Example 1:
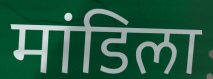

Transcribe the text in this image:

मांडिला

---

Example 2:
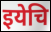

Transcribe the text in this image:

इयेचि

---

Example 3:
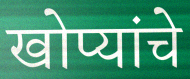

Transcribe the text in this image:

खोप्यांचे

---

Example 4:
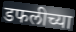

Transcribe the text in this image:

डफलीच्या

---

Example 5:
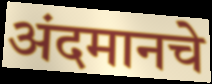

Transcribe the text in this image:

अंदमानचे